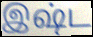
இஷ்ட